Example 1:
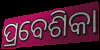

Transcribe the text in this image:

ପ୍ରବେଶିକା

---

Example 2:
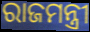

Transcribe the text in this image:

ରାଜମନ୍ତ୍ରୀ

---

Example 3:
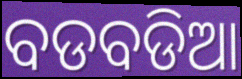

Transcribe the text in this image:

ବଡବଡିଆ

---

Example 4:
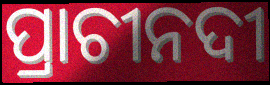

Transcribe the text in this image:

ପ୍ରାଚୀନଦୀ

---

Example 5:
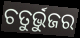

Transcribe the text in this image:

ଚତୁର୍ଭୁଜର